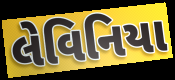
લેવિનિયા